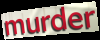
murder